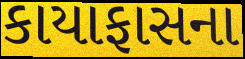
કાયાફાસના